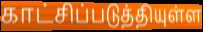
காட்சிப்படுத்தியுள்ள